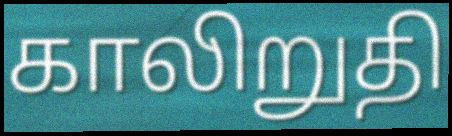
காலிறுதி